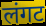
लंगट